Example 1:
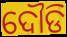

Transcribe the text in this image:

ଦୌଡି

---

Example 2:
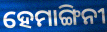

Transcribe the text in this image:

ହେମାଙ୍ଗିନୀ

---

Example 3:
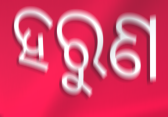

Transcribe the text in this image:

ହରୁଣ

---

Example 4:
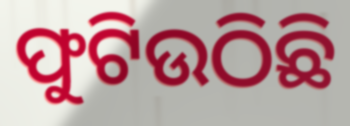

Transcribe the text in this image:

ଫୁଟିଉଠିଛି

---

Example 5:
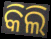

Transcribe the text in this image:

କିଲି